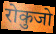
रोकुजो